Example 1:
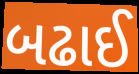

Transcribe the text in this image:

બઢાઈ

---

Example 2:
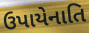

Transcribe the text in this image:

ઉપાયેનાતિ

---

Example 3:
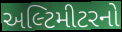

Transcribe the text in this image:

અલ્ટિમીટરનો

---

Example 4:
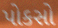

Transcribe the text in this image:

પોકસો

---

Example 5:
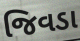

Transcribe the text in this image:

જિવડા